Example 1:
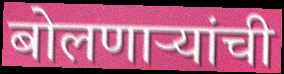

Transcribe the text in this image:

बोलणाऱ्यांची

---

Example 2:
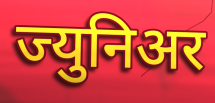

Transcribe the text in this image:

ज्युनिअर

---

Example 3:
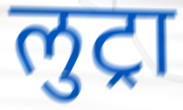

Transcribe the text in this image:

लुट्रा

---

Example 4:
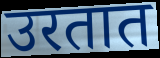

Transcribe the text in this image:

उरतात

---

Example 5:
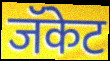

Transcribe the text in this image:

जॅकेट